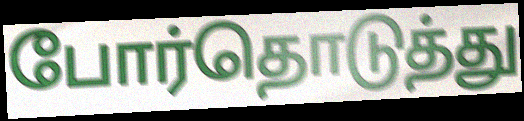
போர்தொடுத்து